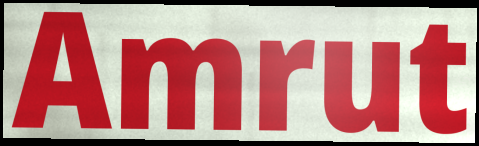
Amrut